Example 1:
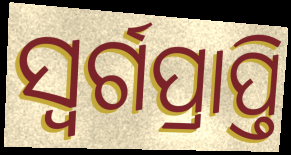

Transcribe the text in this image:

ସ୍ୱର୍ଗପ୍ରାପ୍ତି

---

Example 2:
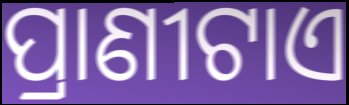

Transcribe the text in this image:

ପ୍ରାଣୀଟାଏ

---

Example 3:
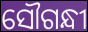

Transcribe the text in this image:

ସୌଗନ୍ଧୀ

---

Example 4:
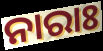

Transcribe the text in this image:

ନାରାଃ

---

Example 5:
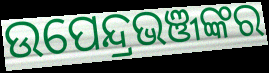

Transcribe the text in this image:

ଉପେନ୍ଦ୍ରଭଞ୍ଜଙ୍କର